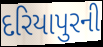
દરિયાપુરની